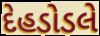
દેહડોડલે